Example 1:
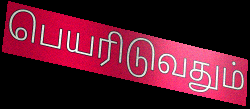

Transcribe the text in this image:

பெயரிடுவதும்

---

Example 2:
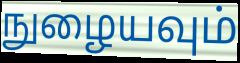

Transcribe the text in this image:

நுழையவும்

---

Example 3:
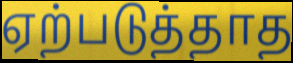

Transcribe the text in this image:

ஏற்படுத்தாத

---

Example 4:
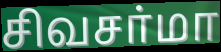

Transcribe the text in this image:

சிவசர்மா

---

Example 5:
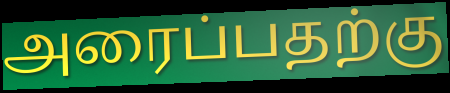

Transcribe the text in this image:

அரைப்பதற்கு